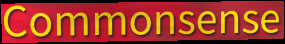
Commonsense